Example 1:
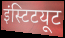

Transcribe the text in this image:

इंस्टिटयूट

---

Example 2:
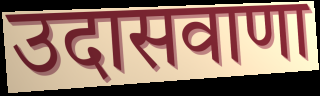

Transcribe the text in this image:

उदासवाणा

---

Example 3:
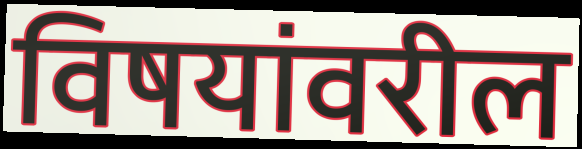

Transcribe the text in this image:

विषयांवरील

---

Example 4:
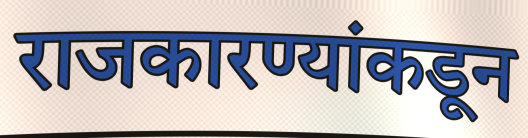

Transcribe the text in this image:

राजकारण्यांकडून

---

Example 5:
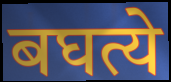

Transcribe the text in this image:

बघत्ये